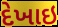
દેખાઇ